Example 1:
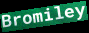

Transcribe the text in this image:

Bromiley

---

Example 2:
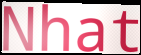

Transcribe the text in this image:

Nhat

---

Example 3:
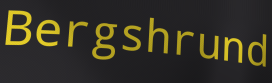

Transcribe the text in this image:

Bergshrund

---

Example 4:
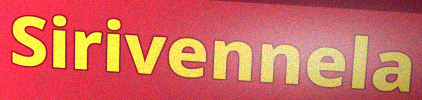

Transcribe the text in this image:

Sirivennela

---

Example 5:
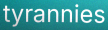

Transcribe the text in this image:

tyrannies